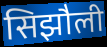
सिझौली